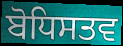
ਬੋਧਿਸਤਵ